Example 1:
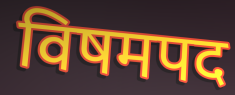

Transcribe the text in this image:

विषमपद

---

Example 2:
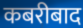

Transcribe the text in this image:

कबरीबाद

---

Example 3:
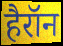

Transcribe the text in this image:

हैरॉन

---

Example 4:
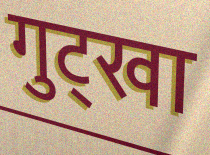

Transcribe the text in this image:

गुट्खा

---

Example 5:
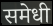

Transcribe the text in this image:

समेधी